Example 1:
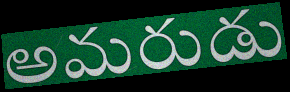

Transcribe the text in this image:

అమరుడు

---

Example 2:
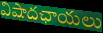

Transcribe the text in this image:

విషాదఛాయలు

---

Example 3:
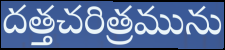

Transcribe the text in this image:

దత్తచరిత్రమును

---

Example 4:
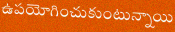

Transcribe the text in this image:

ఉపయోగించుకుంటున్నాయి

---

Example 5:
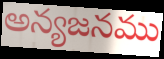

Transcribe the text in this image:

అన్యజనము